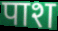
पाश